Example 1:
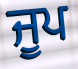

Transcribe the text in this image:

ਜੂਪ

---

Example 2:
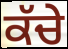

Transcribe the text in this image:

ਕੱਚੇ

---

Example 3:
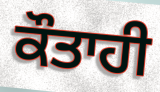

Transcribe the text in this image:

ਕੌਤਾਹੀ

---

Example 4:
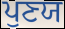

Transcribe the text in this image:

ਪੁਣਯ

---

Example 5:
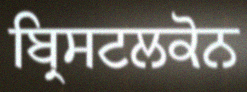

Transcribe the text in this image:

ਬ੍ਰਿਸਟਲਕੋਨ